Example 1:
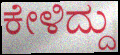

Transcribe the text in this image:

ಕೇಳಿದ್ದು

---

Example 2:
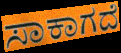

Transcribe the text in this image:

ಸಾಕಾಗದೆ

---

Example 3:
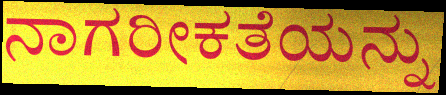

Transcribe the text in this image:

ನಾಗರೀಕತೆಯನ್ನು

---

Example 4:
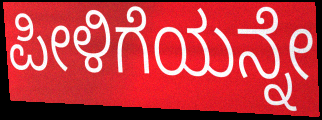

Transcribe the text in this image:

ಪೀಳಿಗೆಯನ್ನೇ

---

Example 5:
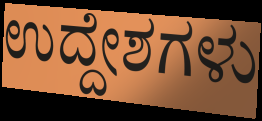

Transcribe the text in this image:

ಉದ್ದೇಶಗಳು